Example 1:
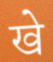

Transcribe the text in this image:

खे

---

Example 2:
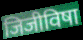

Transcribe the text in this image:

जिजीविषा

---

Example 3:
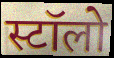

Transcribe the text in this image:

स्टॉलो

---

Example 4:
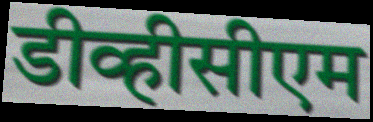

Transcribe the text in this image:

डीव्हीसीएम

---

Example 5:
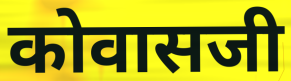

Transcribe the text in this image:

कोवासजी